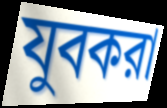
যুবকরা